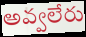
అవ్వలేరు